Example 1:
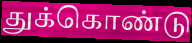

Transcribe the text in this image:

துக்கொண்டு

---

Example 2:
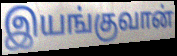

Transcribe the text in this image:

இயங்குவான்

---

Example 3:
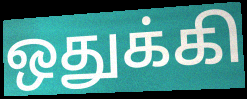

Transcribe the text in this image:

ஒதுக்கி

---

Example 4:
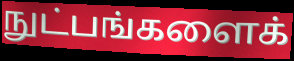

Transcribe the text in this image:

நுட்பங்களைக்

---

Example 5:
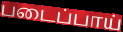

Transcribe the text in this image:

படைப்பாய்